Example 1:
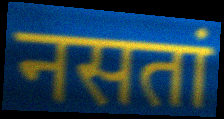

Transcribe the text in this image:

नसतां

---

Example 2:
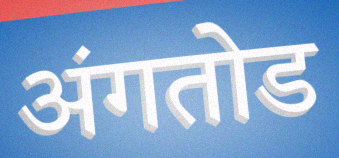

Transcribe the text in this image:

अंगतोड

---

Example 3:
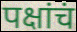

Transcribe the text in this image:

पक्षांचं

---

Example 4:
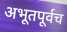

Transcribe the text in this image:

अभूतपूर्वच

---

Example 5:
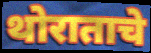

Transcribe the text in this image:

थोराताचे